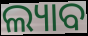
ଲ୍ୟାବ